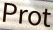
Prot